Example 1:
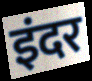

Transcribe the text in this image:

इंदर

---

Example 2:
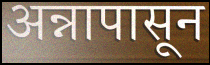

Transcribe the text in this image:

अन्नापासून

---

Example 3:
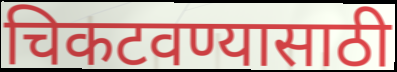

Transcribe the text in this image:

चिकटवण्यासाठी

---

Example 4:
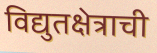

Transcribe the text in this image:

विद्युतक्षेत्राची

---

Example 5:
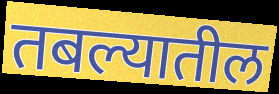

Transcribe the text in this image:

तबल्यातील